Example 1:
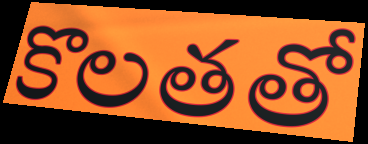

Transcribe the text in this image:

కొలతతో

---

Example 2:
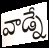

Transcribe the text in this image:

వాడ్నే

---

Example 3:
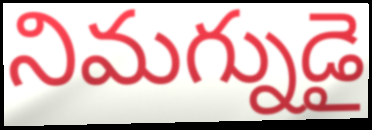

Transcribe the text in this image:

నిమగ్నుడై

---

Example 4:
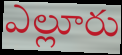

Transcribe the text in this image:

ఎల్లూరు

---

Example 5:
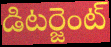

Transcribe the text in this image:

డిటర్జెంట్